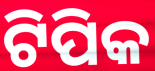
ଟିପିକ